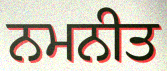
ਨਮਨੀਤ